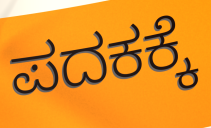
ಪದಕಕ್ಕೆ